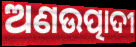
ଅଣଉତ୍ପାଦୀ